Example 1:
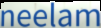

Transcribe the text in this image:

neelam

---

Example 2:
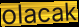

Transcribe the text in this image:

olacak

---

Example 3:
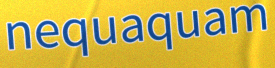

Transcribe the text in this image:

nequaquam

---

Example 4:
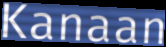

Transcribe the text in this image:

Kanaan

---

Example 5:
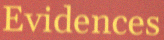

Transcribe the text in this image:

Evidences